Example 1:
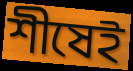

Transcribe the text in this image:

শীষেই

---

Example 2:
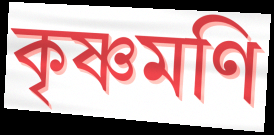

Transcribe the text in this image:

কৃষ্ণমণি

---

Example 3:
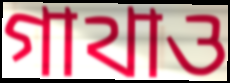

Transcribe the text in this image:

গাথাও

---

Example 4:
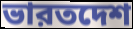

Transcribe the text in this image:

ভারতদেশ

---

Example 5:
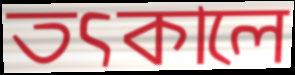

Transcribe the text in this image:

তৎকালে